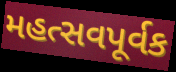
મહત્સવપૂર્વક